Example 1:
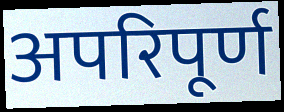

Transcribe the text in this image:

अपरिपूर्ण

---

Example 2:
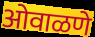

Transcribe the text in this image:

ओवाळणे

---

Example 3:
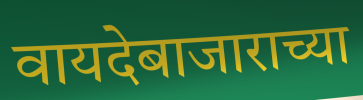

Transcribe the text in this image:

वायदेबाजाराच्या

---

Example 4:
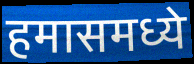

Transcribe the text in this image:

हमासमध्ये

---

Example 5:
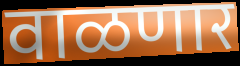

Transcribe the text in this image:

वाळणार